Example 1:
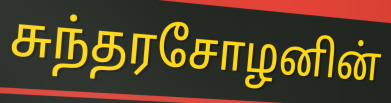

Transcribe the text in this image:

சுந்தரசோழனின்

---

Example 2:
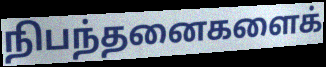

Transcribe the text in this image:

நிபந்தனைகளைக்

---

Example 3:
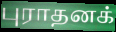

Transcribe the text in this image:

புராதனக்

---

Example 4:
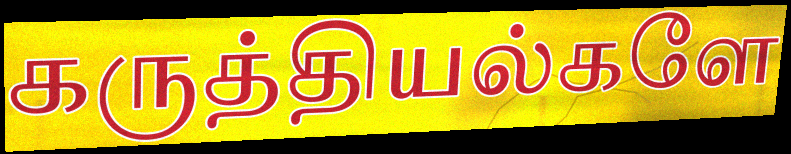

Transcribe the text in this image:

கருத்தியல்களே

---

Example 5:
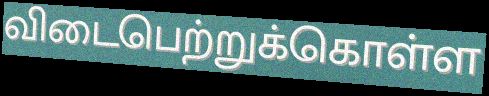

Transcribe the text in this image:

விடைபெற்றுக்கொள்ள